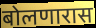
बोलणारास